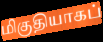
மிகுதியாகப்